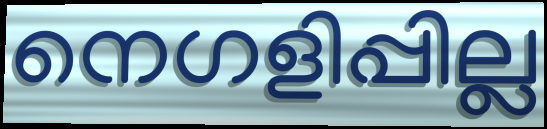
നെഗളിപ്പില്ല